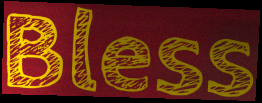
Bless